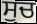
ਸੁਚ